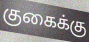
குகைக்கு